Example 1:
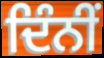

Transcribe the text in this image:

ਦਿੰਨੀਂ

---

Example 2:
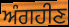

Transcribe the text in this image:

ਅੰਗਹੀਣ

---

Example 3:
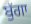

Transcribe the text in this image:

ਬੁੱਗਾ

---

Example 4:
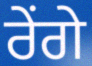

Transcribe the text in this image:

ਰੇਂਗੇ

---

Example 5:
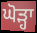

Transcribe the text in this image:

ਘੋੜ੍ਹਾ